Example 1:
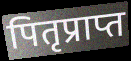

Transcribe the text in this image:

पितृप्राप्त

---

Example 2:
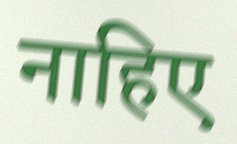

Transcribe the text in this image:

नाहिए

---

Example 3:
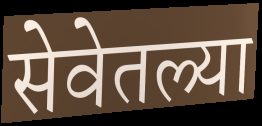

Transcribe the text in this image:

सेवेतल्या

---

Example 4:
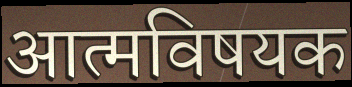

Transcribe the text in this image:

आत्मविषयक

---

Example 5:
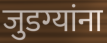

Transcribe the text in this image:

जुडग्यांना